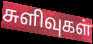
சுளிவுகள்